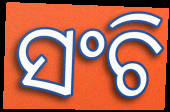
ସଂଚି